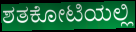
ಶತಕೋಟಿಯಲ್ಲಿ